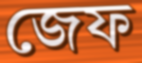
জেফ